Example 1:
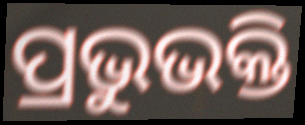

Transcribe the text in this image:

ପ୍ରଭୁଭକ୍ତି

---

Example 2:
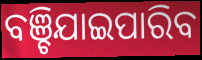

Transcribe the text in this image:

ବଞ୍ଚିଯାଇପାରିବ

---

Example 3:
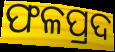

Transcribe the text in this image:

ଫଳପ୍ରଦ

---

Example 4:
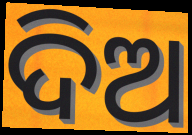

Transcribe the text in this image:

ଦିଅ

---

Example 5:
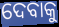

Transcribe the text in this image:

ଦେବାକୁ